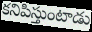
కనిపిస్తుంటాడు